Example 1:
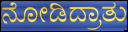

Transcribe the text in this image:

ನೋಡಿದ್ರಾತು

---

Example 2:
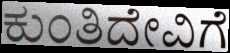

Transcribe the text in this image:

ಕುಂತಿದೇವಿಗೆ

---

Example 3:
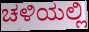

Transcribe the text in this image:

ಚಳಿಯಲ್ಲಿ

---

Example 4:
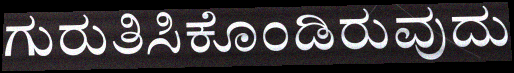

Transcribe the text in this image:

ಗುರುತಿಸಿಕೊಂಡಿರುವುದು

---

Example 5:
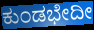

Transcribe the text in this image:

ಕುಂಡಭೇದೀ